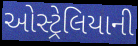
ઓસ્ટ્રેલિયાની